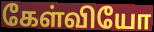
கேள்வியோ